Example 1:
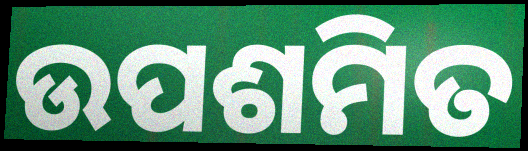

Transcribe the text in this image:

ଉପଶମିତ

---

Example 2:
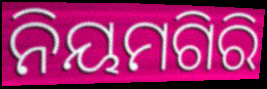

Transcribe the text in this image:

ନିୟମଗିରି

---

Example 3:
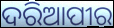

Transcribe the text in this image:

ଦରିଆପୀର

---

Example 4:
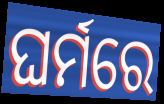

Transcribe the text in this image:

ଘର୍ମରେ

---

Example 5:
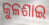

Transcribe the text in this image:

କୁଳଶାଇ